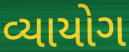
વ્યાયોગ